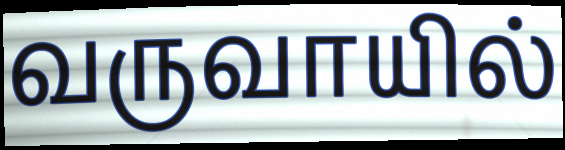
வருவாயில்